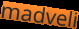
madveli